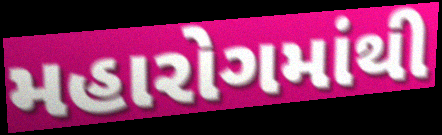
મહારોગમાંથી